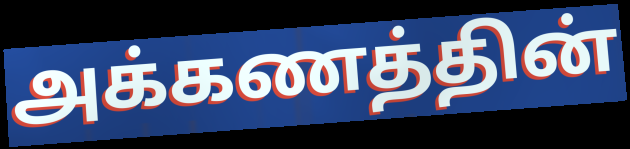
அக்கணத்தின்